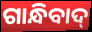
ଗାନ୍ଧିବାଦ୍